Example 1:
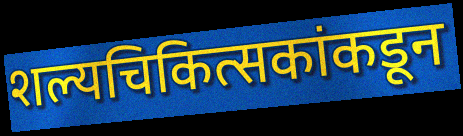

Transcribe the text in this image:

शल्यचिकित्सकांकडून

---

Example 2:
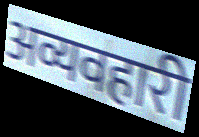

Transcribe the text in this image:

अव्यवहारी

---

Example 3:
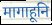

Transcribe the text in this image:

मागाहूनि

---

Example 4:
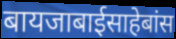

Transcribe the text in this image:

बायजाबाईसाहेबांस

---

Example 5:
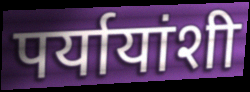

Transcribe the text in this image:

पर्यायांशी